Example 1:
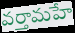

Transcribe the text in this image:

వర్తామహే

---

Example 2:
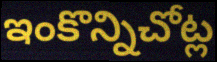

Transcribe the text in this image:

ఇంకొన్నిచోట్ల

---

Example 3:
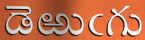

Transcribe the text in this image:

డెఱుఁగు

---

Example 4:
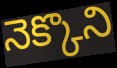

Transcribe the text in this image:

నెక్కొని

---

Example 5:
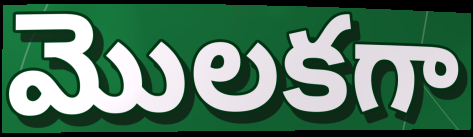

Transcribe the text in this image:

మొలకగా